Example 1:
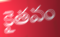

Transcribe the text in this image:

కైతవం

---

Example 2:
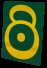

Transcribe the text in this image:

ఠి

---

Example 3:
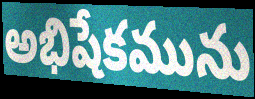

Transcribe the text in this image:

అభిషేకమును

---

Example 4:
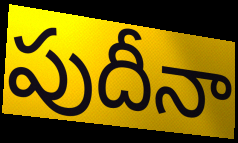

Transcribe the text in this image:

పుదీనా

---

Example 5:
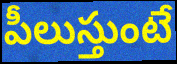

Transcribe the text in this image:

పీలుస్తుంటే